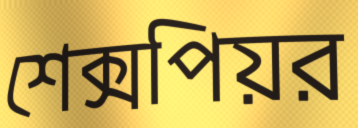
শেক্সপিয়র